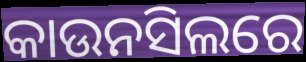
କାଉନସିଲରେ